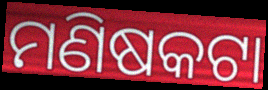
ମଣିଷକଟା